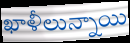
ఖాళీలున్నాయి